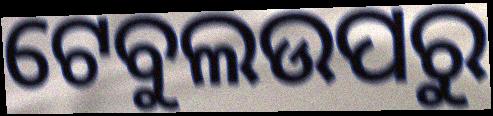
ଟେବୁଲଉପରୁ